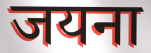
जयना